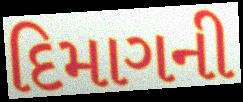
દિમાગની